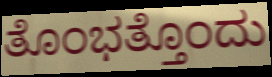
ತೊಂಭತ್ತೊಂದು